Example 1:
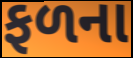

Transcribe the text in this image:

ફળના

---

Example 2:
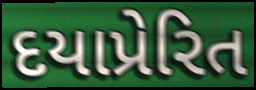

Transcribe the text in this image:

દયાપ્રેરિત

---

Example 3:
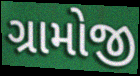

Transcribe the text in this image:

ગ્રામોજી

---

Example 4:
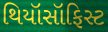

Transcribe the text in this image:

થિયૉસૉફિસ્ટ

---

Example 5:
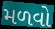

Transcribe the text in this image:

મળવો